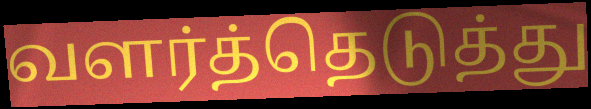
வளர்த்தெடுத்து